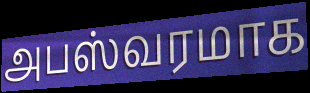
அபஸ்வரமாக